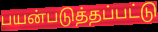
பயன்படுத்தப்பட்டு